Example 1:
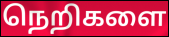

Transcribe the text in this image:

நெறிகளை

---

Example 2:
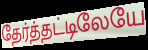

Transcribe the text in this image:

தேர்த்தட்டிலேயே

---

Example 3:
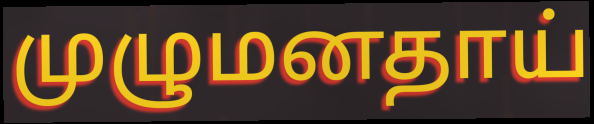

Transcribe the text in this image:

முழுமனதாய்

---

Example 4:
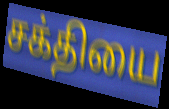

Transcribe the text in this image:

சக்தியை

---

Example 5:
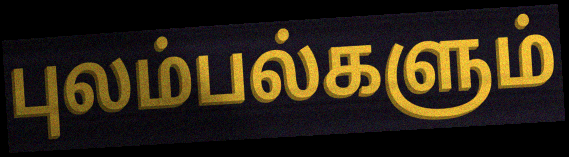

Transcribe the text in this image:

புலம்பல்களும்